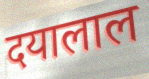
दयालाल